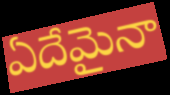
ఏదేమైనా